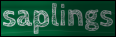
saplings